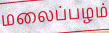
மலைப்பழம்